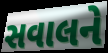
સવાલને